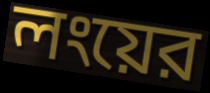
লংয়ের